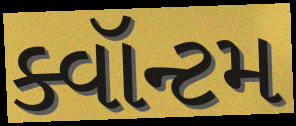
ક્વૉન્ટમ